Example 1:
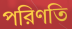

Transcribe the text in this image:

পরিণতি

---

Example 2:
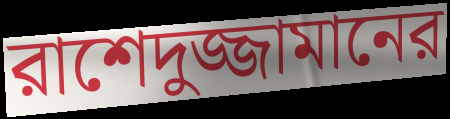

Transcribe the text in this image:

রাশেদুজ্জামানের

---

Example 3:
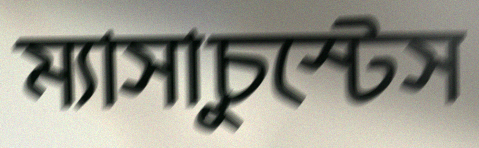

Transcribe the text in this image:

ম্যাসাচুস্টেস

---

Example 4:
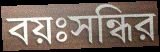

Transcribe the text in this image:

বয়ঃসন্ধির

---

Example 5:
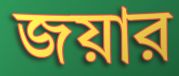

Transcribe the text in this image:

জয়ার